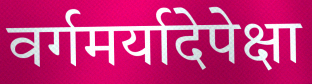
वर्गमर्यादेपेक्षा